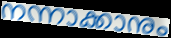
നന്നാക്കാനും